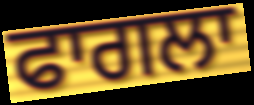
ਫਾਗਲਾ